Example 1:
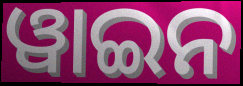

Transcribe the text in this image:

ୱାଇନ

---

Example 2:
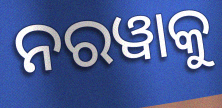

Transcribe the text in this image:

ନରୱାକୁ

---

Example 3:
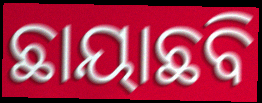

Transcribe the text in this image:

ଛାୟାଛବି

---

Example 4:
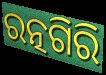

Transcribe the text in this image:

ରତ୍ନଗିରି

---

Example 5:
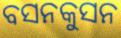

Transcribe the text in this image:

ବସନକୁସନ